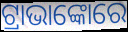
ଟ୍ରାଭାଙ୍କୋରେ